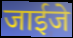
जाईजे